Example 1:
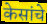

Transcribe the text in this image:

केसांचे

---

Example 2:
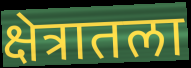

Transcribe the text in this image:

क्षेत्रातला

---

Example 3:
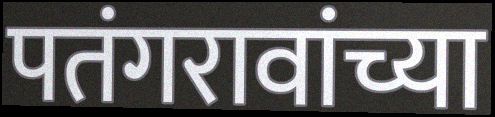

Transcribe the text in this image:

पतंगरावांच्या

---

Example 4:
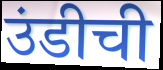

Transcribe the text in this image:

उंडीची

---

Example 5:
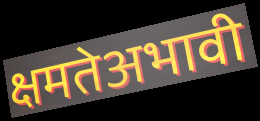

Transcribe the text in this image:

क्षमतेअभावी